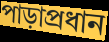
পাড়াপ্রধান